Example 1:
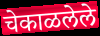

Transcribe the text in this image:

चेकाळलेले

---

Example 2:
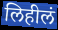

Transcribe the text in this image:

लिहीलं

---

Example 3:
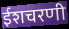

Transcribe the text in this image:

ईशचरणी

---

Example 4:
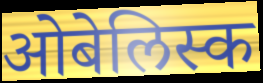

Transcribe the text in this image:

ओबेलिस्क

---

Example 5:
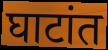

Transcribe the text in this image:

घाटांत